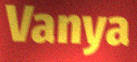
Vanya